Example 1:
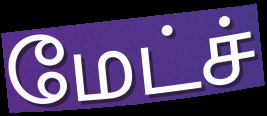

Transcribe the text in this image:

மேட்ச்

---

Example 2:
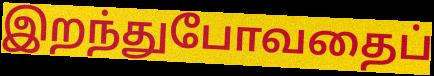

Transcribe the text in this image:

இறந்துபோவதைப்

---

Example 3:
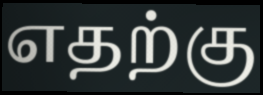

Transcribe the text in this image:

எதற்கு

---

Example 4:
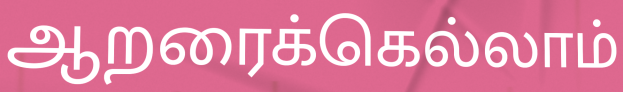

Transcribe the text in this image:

ஆறரைக்கெல்லாம்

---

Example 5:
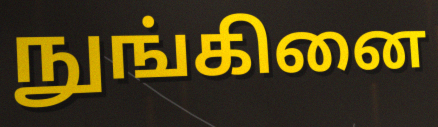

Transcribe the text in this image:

நுங்கினை